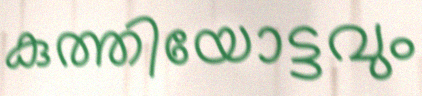
കുത്തിയോട്ടവും